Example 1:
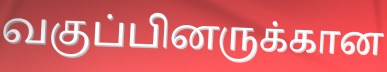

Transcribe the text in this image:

வகுப்பினருக்கான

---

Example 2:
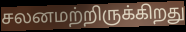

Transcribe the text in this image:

சலனமற்றிருக்கிறது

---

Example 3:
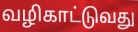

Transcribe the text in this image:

வழிகாட்டுவது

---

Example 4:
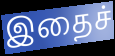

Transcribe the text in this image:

இதைச்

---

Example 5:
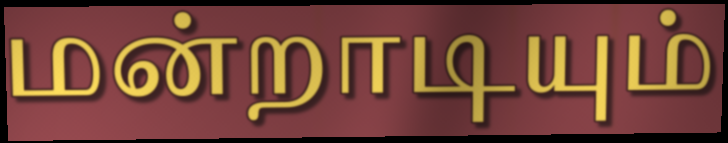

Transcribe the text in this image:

மன்றாடியும்